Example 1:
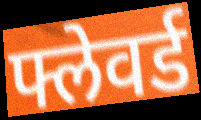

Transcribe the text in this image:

फ्लेवर्ड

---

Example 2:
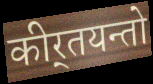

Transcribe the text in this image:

कीर्तयन्तो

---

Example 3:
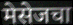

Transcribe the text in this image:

मेसेजचा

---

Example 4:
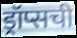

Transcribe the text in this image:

ड्रॉप्सची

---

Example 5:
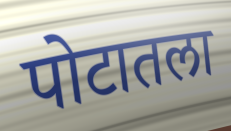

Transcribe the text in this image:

पोटातला